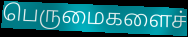
பெருமைகளைச்